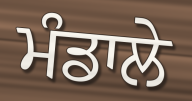
ਮੰਡਾਲੇ